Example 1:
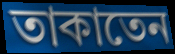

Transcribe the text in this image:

তাকাতেন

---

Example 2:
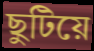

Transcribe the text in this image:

ছুটিয়ে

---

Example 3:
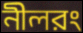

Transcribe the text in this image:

নীলরং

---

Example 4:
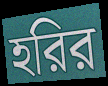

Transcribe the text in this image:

হরির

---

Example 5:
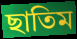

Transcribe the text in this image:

ছাতিম